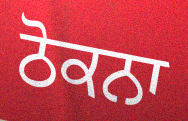
ਠੋਕਨਾ